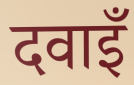
दवाइँ